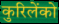
कुरिलेंको